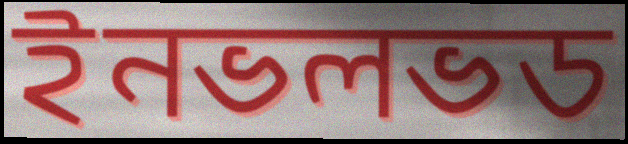
ইনভলভড